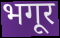
भगूर